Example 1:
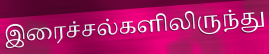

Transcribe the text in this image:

இரைச்சல்களிலிருந்து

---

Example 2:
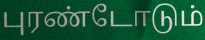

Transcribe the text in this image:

புரண்டோடும்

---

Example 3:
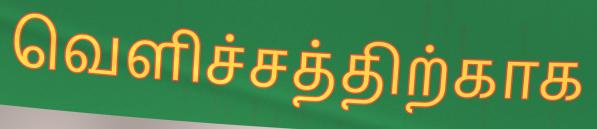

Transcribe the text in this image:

வெளிச்சத்திற்காக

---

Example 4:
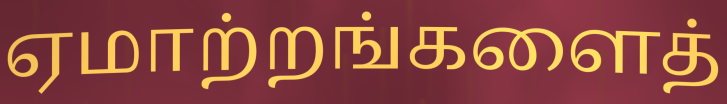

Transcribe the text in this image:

ஏமாற்றங்களைத்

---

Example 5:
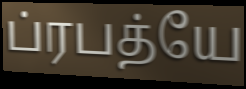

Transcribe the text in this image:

ப்ரபத்யே